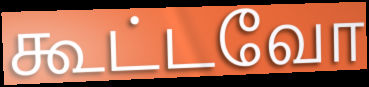
கூட்டவோ